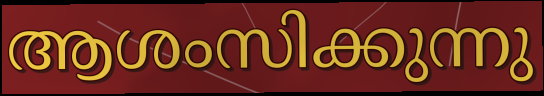
ആശംസിക്കുന്നു